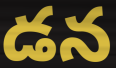
డన